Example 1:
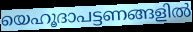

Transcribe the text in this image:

യെഹൂദാപട്ടണങ്ങളിൽ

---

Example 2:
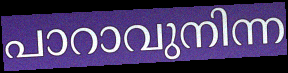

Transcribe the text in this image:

പാറാവുനിന്ന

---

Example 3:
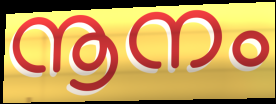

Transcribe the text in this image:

നൂനം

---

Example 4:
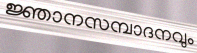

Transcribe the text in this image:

ജ്ഞാനസമ്പാദനവും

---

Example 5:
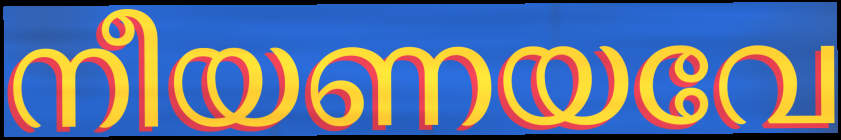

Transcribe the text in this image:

നീയണയവേ